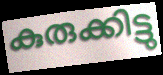
കുരുക്കിട്ടു